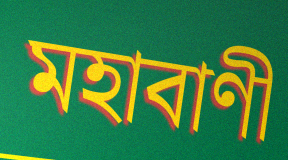
মহাবাণী